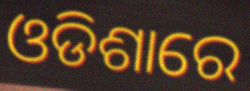
ଓଡିଶାରେ